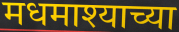
मधमाश्याच्या